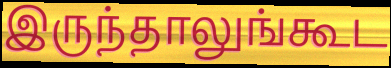
இருந்தாலுங்கூட